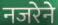
नजरेने